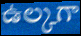
ఉల్కగా